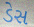
ડેસ